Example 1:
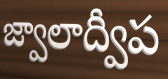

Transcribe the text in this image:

జ్వాలాద్వీప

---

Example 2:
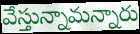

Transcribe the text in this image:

వేస్తున్నామన్నారు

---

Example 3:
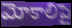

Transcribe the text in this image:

మోకాలిపై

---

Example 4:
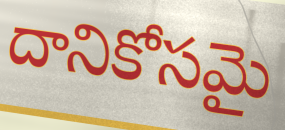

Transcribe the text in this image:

దానికోసమై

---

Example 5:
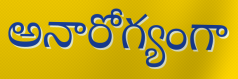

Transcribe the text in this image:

అనారోగ్యంగా